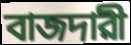
বাজদাৱী